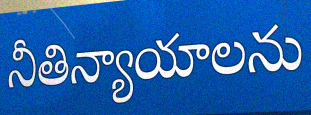
నీతిన్యాయాలను